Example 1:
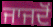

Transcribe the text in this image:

ਜਾਜਦੋਂ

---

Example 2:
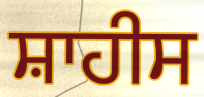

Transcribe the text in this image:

ਸ਼ਾਹੀਸ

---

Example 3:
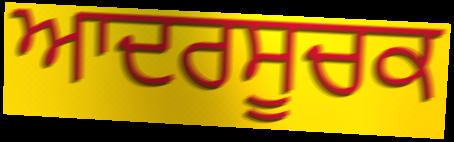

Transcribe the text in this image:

ਆਦਰਸੂਚਕ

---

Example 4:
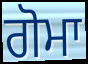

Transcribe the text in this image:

ਗੋਮਾ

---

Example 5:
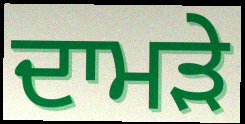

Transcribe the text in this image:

ਦਾਮੜੇ